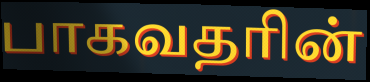
பாகவதரின்